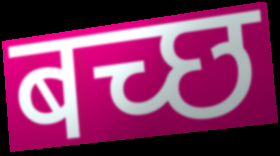
बच्छ